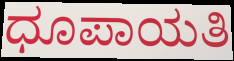
ಧೂಪಾಯತಿ